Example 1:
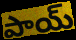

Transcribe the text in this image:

పాయ్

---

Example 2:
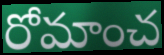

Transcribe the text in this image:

రోమాంచ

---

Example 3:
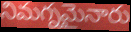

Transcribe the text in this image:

నిమగ్నమైనారు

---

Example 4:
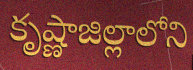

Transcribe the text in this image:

కృష్ణాజిల్లాలోని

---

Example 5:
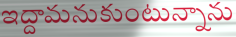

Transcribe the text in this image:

ఇద్దామనుకుంటున్నాను